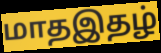
மாதஇதழ்